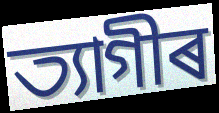
ত্যাগীৰ